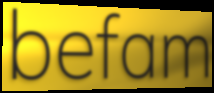
befam